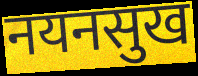
नयनसुख